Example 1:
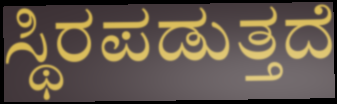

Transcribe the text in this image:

ಸ್ಥಿರಪಡುತ್ತದೆ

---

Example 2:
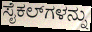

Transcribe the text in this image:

ಸೈಕಲ್‌ಗಳನ್ನು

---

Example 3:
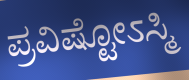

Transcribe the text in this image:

ಪ್ರವಿಷ್ಟೋಽಸ್ಮಿ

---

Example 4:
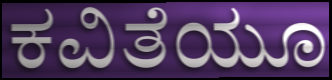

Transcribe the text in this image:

ಕವಿತೆಯೂ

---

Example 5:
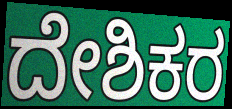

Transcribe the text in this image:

ದೇಶಿಕರ